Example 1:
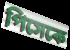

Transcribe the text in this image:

পিসেকে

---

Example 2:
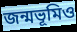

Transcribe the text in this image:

জন্মভূমিও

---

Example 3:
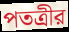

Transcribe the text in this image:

পতত্রীর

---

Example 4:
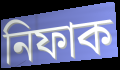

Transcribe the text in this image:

নিফাক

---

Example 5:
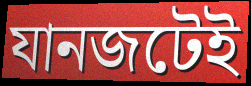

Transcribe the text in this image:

যানজটেই